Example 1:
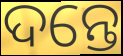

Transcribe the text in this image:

ଦନ୍ତେ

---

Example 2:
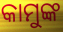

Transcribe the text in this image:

କାମୁଙ୍କ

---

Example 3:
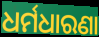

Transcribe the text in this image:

ଧର୍ମଧାରଣା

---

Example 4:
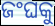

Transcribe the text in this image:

ଜଂଘକୁ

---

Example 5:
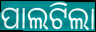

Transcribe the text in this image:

ପାଲଟିଲା